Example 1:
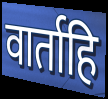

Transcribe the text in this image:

वार्ताहि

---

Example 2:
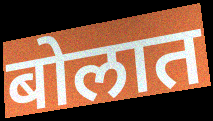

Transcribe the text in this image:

बोलात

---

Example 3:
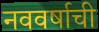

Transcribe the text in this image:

नववर्षाची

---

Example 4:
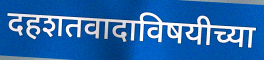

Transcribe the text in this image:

दहशतवादाविषयीच्या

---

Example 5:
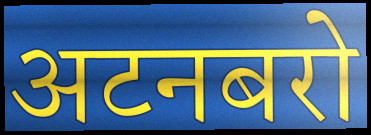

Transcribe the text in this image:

अटनबरो